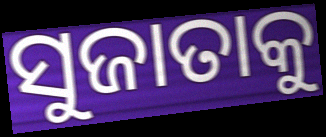
ସୁଜାତାକୁ